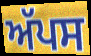
ਅੱਪਸ